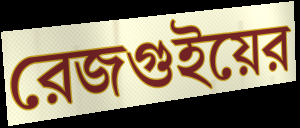
রেজগুইয়ের